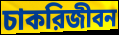
চাকরিজীবন